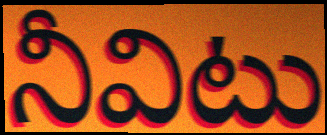
నీవిటు